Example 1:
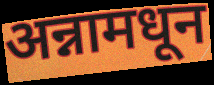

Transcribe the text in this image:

अन्नामधून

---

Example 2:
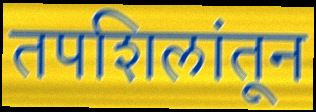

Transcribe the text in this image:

तपशिलांतून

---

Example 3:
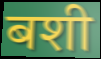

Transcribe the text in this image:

बशी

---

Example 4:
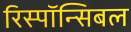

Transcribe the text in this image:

रिस्पॉन्सिबल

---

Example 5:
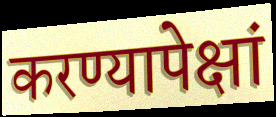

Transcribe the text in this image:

करण्यापेक्षां